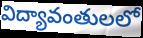
విద్యావంతులలో